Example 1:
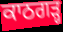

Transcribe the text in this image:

ਕਾਠਗਡ਼੍ਹ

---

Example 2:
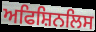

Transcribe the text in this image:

ਅਫਿਸ਼ਿਨਲਿਸ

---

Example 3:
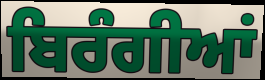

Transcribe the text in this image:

ਬਿਰੰਗੀਆਂ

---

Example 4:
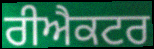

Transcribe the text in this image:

ਰੀਐਕਟਰ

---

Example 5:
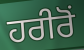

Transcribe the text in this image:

ਹਰੀਰੋਂ